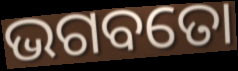
ଭଗବତୋ